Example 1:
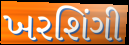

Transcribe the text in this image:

ખરશિંગી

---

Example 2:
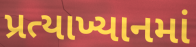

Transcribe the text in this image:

પ્રત્યાખ્યાનમાં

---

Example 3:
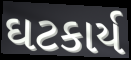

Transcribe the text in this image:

ઘટકાર્ય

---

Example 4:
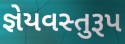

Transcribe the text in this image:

જ્ઞેયવસ્તુરૂપ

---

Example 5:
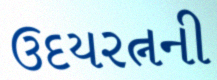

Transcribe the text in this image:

ઉદયરત્નની